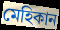
মেহিকান